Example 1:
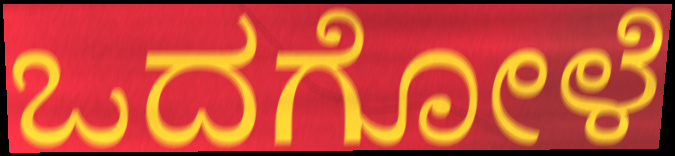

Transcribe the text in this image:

ಒದಗೋಳೆ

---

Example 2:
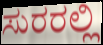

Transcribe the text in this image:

ಸುರರಲ್ಲಿ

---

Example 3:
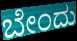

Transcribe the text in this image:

ಬೇಂದು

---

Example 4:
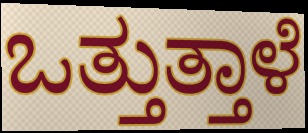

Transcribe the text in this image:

ಒತ್ತುತ್ತಾಳೆ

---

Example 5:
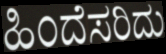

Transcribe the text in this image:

ಹಿಂದೆಸರಿದು